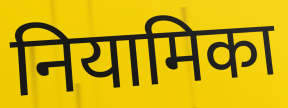
नियामिका